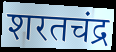
शरतचंद्र